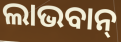
ଲାଭବାନ୍